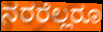
ನರರೆಲ್ಲರೂ